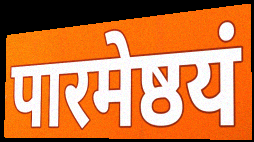
पारमेष्ठयं